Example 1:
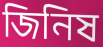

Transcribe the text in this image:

জিনিষ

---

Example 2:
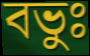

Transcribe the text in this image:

বভুঃ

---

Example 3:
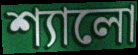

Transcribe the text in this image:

শ্যালো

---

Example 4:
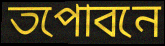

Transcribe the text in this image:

তপোবনে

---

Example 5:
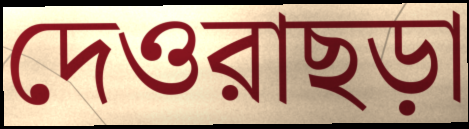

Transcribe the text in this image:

দেওরাছড়া